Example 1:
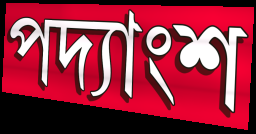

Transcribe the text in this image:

পদ্যাংশ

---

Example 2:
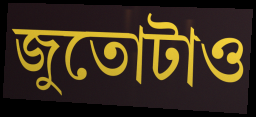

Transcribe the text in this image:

জুতোটাও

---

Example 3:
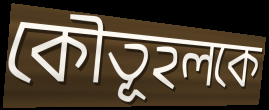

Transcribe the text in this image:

কৌতূহলকে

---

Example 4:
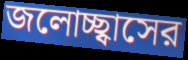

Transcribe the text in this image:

জলোচ্ছ্বাসের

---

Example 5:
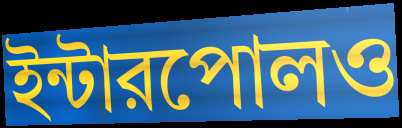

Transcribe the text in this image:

ইন্টারপোলও